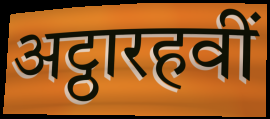
अट्ठारहवीं